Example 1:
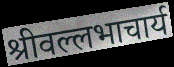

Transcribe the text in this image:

श्रीवल्लभाचार्य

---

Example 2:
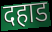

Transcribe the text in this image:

दहाड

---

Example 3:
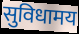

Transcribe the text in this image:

सुविधामय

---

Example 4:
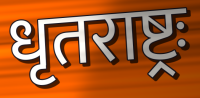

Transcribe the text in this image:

धृतराष्ट्रः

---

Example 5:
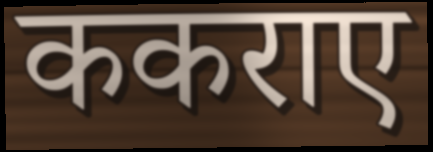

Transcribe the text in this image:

ककराए